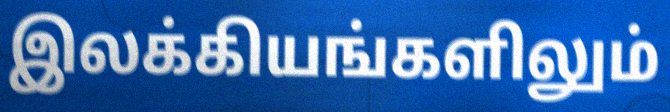
இலக்கியங்களிலும்